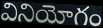
వినియోగం